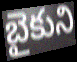
బైకుని